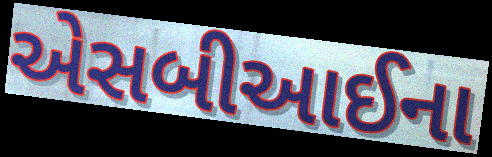
એસબીઆઈના